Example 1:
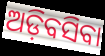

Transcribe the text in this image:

ଅଡ଼ିବସିବା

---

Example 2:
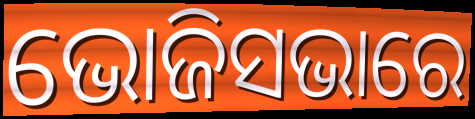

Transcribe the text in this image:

ଭୋଜିସଭାରେ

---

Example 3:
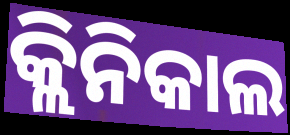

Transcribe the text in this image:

କ୍ଲିନିକାଲ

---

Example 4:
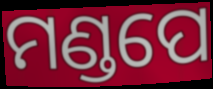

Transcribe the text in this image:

ମଣ୍ଡପେ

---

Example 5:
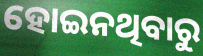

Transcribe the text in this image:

ହୋଇନଥିବାରୁ